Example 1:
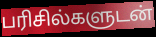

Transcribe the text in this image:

பரிசில்களுடன்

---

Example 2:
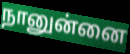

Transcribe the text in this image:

நானுன்னை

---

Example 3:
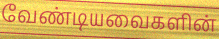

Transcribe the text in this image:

வேண்டியவைகளின்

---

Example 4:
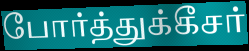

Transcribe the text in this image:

போர்த்துக்கீசர்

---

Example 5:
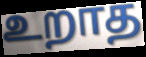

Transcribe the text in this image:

உறாத